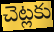
చెట్లకు